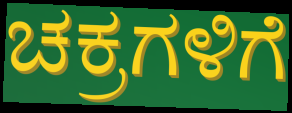
ಚಕ್ರಗಳಿಗೆ